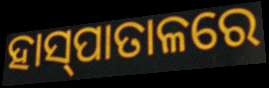
ହାସ୍‍ପାତାଳରେ